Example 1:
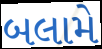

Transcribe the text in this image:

બલામે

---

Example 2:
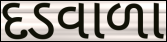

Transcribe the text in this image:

દડવાળા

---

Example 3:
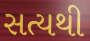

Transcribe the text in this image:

સત્યથી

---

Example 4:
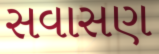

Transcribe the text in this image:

સવાસણ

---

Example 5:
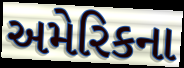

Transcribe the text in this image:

અમેરિકના